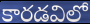
కారడవిలో